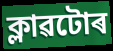
ক্লাৱটোৰ